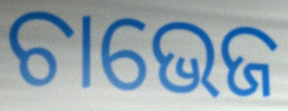
ଚାଭେଜ